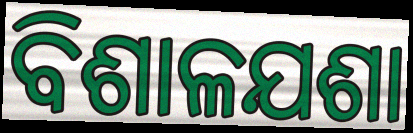
ବିଶାଳଯଶା